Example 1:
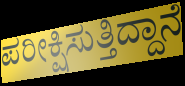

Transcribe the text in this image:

ಪರೀಕ್ಷಿಸುತ್ತಿದ್ದಾನೆ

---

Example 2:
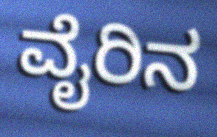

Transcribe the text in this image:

ವೈರಿನ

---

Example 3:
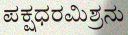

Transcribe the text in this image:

ಪಕ್ಷಧರಮಿಶ್ರನು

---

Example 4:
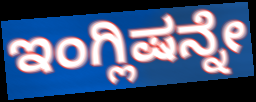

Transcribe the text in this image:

ಇಂಗ್ಲಿಷನ್ನೇ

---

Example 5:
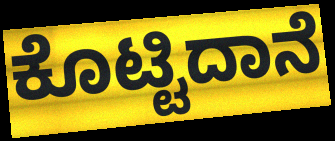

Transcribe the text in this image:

ಕೊಟ್ಟಿದಾನೆ